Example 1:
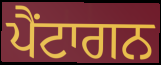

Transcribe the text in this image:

ਪੈਂਟਾਗਨ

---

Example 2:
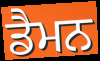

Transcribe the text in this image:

ਡੈਮਨ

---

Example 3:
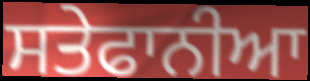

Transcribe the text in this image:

ਸਤੇਫਾਨੀਆ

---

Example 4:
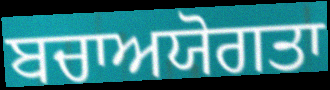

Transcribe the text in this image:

ਬਚਾਅਯੋਗਤਾ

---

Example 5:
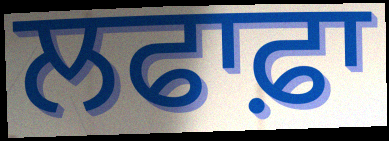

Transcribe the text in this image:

ਲਫਾਫ਼ਾ